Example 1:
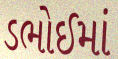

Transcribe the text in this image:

ડભોઈમાં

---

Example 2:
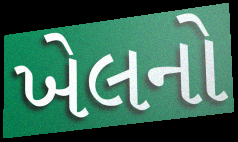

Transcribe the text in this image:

ખેલનો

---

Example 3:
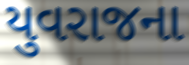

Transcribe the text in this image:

યુવરાજના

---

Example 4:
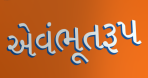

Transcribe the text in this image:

એવંભૂતરૂપ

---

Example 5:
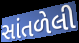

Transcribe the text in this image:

સાંતળેલી